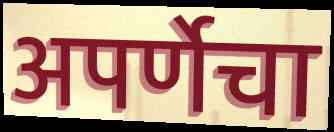
अपर्णेचा